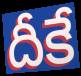
దీకే